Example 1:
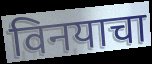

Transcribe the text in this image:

विनयाचा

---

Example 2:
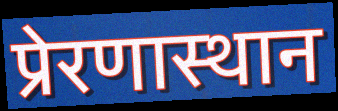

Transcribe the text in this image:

प्रेरणास्थान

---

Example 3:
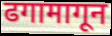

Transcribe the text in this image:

ढगामागून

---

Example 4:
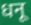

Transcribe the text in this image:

धनू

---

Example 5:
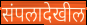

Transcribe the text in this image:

संपलादेखील